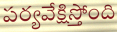
పర్యవేక్షిస్తోంది